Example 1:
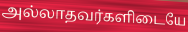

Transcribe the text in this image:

அல்லாதவர்களிடையே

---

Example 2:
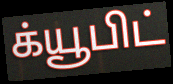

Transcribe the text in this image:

க்யூபிட்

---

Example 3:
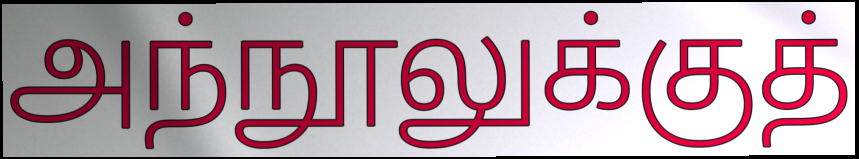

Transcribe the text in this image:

அந்நூலுக்குத்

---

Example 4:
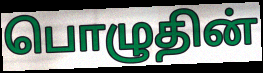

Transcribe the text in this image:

பொழுதின்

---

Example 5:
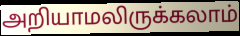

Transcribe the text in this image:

அறியாமலிருக்கலாம்